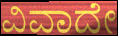
ವಿವಾದೇ